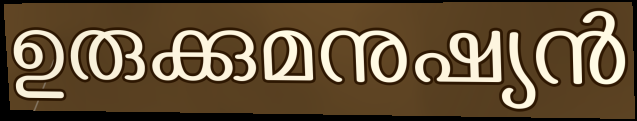
ഉരുക്കുമനുഷ്യൻ